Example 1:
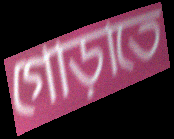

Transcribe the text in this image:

গোড়াতে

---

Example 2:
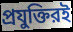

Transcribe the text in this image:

প্রযুক্তিরই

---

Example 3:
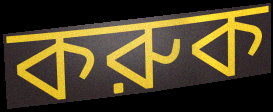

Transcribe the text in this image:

করুক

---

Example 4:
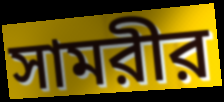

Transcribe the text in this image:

সামরীর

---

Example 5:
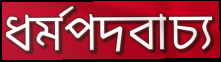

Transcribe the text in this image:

ধর্মপদবাচ্য